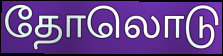
தோலொடு